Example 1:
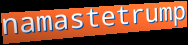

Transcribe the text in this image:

namastetrump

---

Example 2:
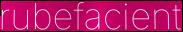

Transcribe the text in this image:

rubefacient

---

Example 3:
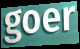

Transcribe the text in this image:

goer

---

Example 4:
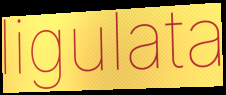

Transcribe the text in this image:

ligulata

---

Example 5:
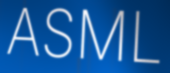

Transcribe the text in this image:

ASML